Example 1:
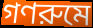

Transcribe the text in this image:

গণরুমে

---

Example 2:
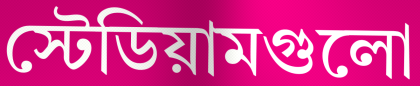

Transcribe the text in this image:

স্টেডিয়ামগুলো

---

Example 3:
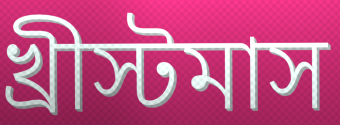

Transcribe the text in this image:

খ্রীস্টমাস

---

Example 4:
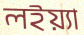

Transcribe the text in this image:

লইয়্যা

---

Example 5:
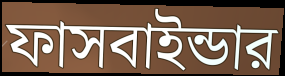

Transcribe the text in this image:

ফাসবাইন্ডার